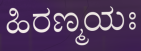
ಹಿರಣ್ಮಯಃ